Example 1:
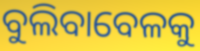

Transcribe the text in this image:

ବୁଲିବାବେଳକୁ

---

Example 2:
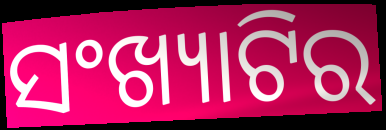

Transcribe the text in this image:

ସଂଖ୍ୟାଟିର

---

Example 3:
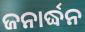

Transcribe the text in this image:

ଜନାର୍ଦ୍ଧନ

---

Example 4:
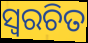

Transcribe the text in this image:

ସ୍ଵରଚିତ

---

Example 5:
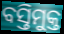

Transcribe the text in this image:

ବସ୍ତିମୁକ୍ତ